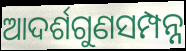
ଆଦର୍ଶଗୁଣସମ୍ପନ୍ନ